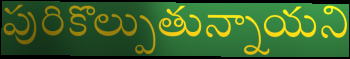
పురికొల్పుతున్నాయని